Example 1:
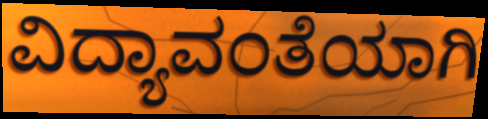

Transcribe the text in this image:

ವಿದ್ಯಾವಂತೆಯಾಗಿ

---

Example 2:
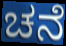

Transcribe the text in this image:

ಚನೆ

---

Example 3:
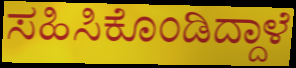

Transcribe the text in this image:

ಸಹಿಸಿಕೊಂಡಿದ್ದಾಳೆ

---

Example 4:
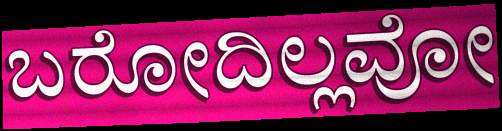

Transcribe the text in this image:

ಬರೋದಿಲ್ಲವೋ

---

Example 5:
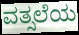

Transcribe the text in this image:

ವತ್ಸಲೆಯ